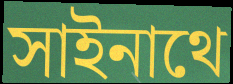
সাইনাথে